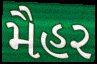
મૈહર